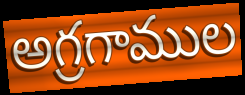
అగ్రగాముల